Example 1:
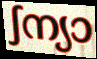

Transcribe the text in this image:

ഽന്യാ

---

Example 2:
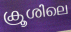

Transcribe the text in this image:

ക്രൂശിലെ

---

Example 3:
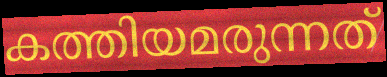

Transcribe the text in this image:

കത്തിയമരുന്നത്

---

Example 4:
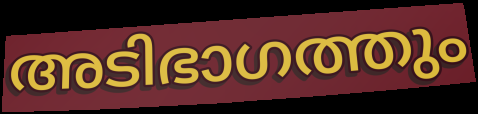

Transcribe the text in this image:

അടിഭാഗത്തും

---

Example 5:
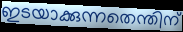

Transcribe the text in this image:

ഇടയാക്കുന്നതെന്തിന്